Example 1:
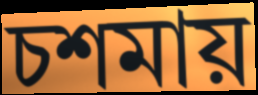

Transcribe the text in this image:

চশমায়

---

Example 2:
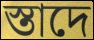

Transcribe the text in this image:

স্তাদে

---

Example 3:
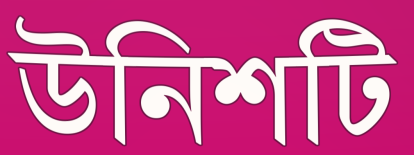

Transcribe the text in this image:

উনিশটি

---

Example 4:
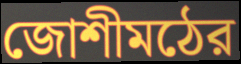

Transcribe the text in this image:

জোশীমঠের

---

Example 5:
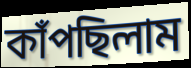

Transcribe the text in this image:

কাঁপছিলাম